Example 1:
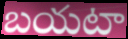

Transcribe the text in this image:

బయటా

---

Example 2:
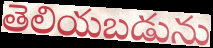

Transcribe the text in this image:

తెలియబడును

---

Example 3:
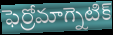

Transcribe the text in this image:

ఫెర్రోమాగ్నెటిక్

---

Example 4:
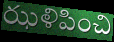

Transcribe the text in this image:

ఝళిపించి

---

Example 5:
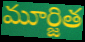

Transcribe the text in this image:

మూర్జిత